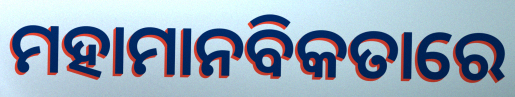
ମହାମାନବିକତାରେ